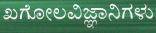
ಖಗೋಲವಿಜ್ಞಾನಿಗಳು